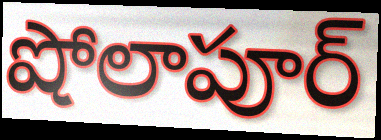
షోలాపూర్